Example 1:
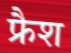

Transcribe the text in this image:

फ्रैश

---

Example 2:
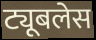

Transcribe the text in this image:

ट्यूबलेस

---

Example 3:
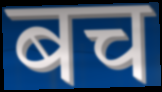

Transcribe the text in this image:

बच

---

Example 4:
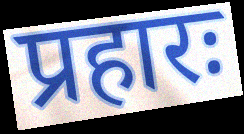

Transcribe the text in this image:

प्रहारः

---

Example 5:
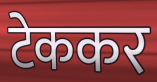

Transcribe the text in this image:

टेककर